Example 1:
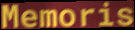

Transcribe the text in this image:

Memoris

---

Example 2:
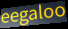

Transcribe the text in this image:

eegaloo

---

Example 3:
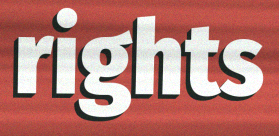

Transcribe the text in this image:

rights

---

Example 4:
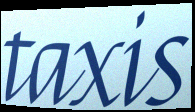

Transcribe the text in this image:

taxis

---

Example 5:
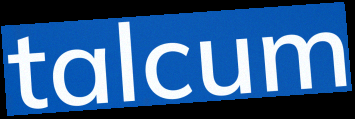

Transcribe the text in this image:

talcum